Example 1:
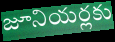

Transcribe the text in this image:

జూనియర్లకు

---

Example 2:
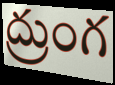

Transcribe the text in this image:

ద్రుంగ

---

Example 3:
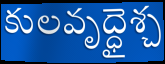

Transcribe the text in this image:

కులవృద్ధైశ్చ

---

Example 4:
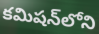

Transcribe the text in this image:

కమిషన్‌లోని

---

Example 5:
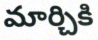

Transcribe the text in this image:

మార్చికి